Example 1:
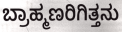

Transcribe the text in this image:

ಬ್ರಾಹ್ಮಣರಿಗಿತ್ತನು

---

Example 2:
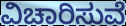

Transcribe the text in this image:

ವಿಚಾರಿಸುವೆ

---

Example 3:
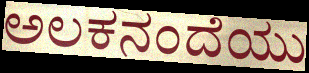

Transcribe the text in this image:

ಅಲಕನಂದೆಯು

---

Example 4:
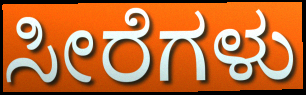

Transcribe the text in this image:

ಸೀರೆಗಳು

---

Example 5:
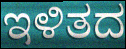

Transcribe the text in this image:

ಇಳಿತದ